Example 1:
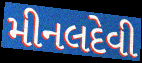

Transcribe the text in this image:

મીનલદેવી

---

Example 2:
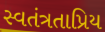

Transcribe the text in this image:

સ્વતંત્રતાપ્રિય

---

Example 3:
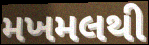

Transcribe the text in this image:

મખમલથી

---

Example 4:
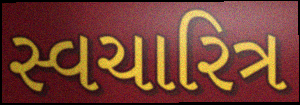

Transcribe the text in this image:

સ્વચારિત્ર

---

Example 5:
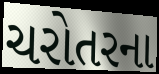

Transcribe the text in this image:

ચરોતરના